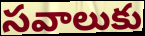
సవాలుకు